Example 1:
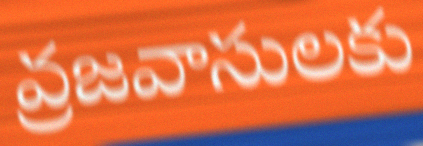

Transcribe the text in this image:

వ్రజవాసులకు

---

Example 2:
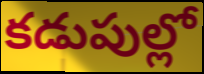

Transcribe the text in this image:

కడుపుల్లో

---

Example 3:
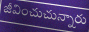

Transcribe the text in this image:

జీవించుచున్నారు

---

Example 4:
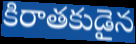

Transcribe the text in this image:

కిరాతకుడైన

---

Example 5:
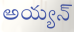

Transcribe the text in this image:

అయ్యన్